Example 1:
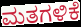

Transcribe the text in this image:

ಮತಗಳಿಕೆ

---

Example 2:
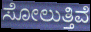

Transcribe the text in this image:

ಸೋಲುತ್ತಿವೆ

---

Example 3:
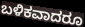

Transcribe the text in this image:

ಬಳಿಕವಾದರೂ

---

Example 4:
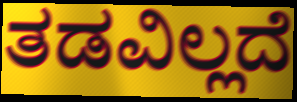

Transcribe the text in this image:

ತಡವಿಲ್ಲದೆ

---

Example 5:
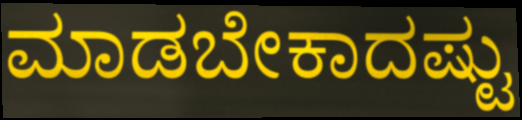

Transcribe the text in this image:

ಮಾಡಬೇಕಾದಷ್ಟು